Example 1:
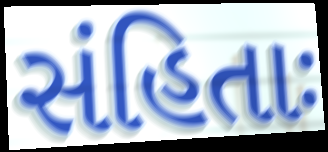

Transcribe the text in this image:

સંહિતાઃ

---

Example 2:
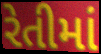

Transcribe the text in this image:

રેતીમાં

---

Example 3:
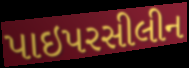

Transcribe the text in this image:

પાઇપરસીલીન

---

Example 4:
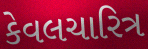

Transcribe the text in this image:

કેવલચારિત્ર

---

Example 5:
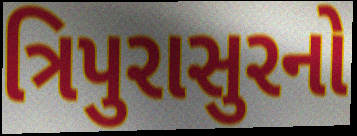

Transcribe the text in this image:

ત્રિપુરાસુરનો